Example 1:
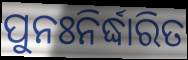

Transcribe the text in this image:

ପୁନଃନିର୍ଦ୍ଧାରିତ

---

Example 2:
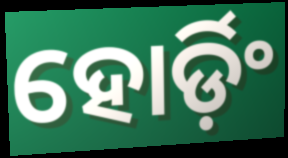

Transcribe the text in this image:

ହୋର୍ଡ଼ିଂ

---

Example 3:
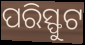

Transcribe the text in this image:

ପରିସ୍ଫୁଟ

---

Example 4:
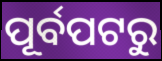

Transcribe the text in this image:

ପୂର୍ବପଟରୁ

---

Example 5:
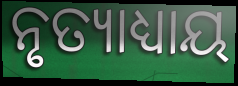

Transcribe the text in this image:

ନୃତ୍ୟାଧ୍ୟାୟ